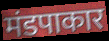
मंडपाकार